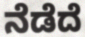
ನೆಡೆದೆ